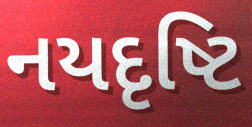
નયદૃષ્ટિ